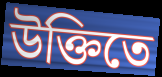
উক্তিতে